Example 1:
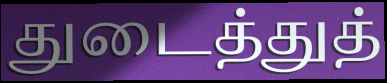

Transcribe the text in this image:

துடைத்துத்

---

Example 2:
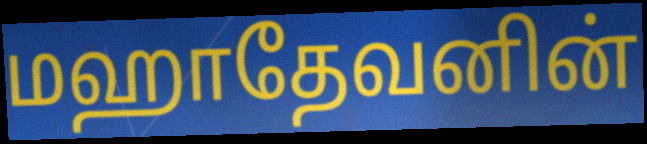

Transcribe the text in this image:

மஹாதேவனின்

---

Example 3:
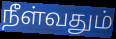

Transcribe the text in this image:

நீள்வதும்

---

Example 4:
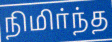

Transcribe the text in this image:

நிமிர்ந்த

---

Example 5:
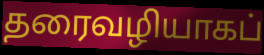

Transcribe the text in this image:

தரைவழியாகப்